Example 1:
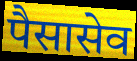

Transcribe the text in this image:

पैसासेव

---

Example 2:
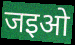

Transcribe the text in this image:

जइओ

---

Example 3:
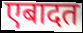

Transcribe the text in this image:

एबादत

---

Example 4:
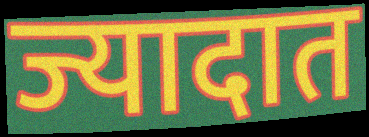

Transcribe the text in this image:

ज्यादात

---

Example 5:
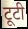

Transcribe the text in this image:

टूटी